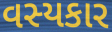
વસ્યકાર